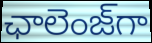
ఛాలెంజ్‌గా